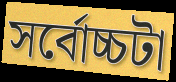
সর্বোচ্চটা